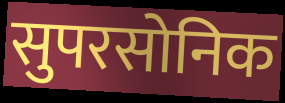
सुपरसोनिक